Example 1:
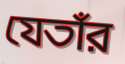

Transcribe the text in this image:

যেতাঁর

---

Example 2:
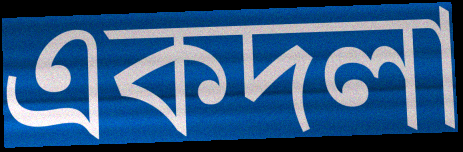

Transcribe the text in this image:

একদলা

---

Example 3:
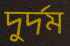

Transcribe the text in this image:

দুর্দম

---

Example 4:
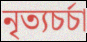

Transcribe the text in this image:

নৃত্যচর্চা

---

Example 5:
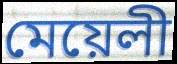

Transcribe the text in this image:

মেয়েলী